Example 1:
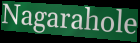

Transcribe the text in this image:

Nagarahole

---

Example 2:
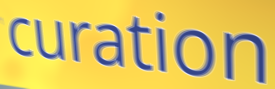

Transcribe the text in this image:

curation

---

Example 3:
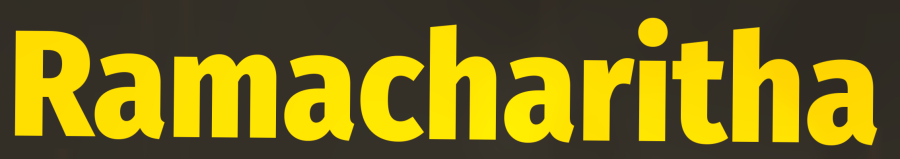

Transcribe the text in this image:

Ramacharitha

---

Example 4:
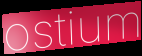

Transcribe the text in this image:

ostium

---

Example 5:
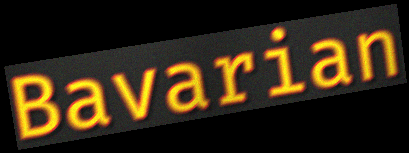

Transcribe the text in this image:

Bavarian